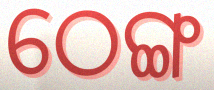
ଠେଙ୍ଗ